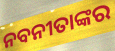
ନବନୀତାଙ୍କର